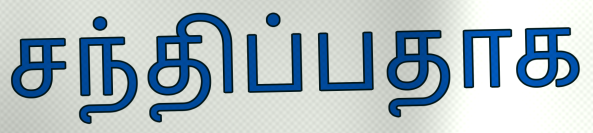
சந்திப்பதாக